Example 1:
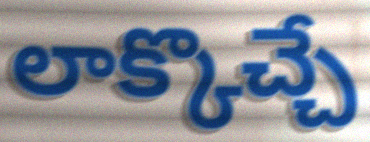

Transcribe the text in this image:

లాక్కొచ్చే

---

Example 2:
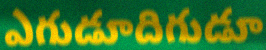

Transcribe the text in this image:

ఎగుడూదిగుడూ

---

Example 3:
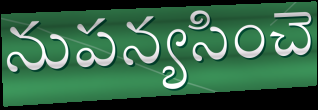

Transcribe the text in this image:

నుపన్యసించె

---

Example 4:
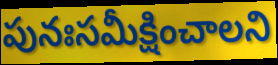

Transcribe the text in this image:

పునఃసమీక్షించాలని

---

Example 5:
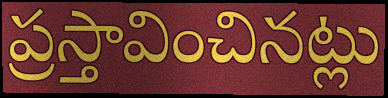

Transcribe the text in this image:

ప్రస్తావించినట్లు